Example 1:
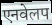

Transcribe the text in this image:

एनवेलप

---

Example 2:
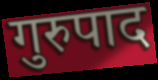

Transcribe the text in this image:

गुरुपाद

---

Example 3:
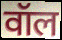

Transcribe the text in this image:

वॉल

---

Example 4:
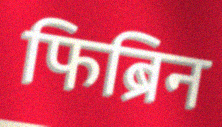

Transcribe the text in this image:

फिब्रिन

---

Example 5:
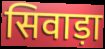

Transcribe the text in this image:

सिवाड़ा